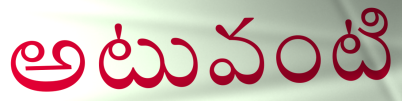
అటువంటి